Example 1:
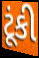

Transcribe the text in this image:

ટૂંકી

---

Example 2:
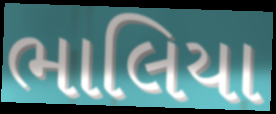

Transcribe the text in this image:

ભાલિયા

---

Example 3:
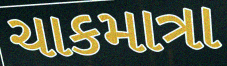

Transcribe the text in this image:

ચાકમાત્રા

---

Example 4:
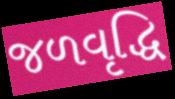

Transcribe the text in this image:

જળવૃદ્ધિ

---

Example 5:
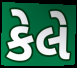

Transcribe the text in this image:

કેલે